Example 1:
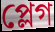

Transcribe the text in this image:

প্লেগ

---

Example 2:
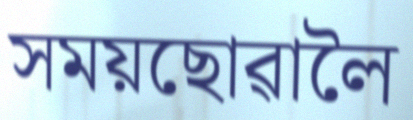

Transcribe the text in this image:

সময়ছোৱালৈ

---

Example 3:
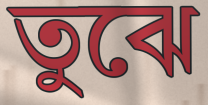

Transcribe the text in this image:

তুঝে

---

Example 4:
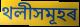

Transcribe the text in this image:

থলীসমূহৰ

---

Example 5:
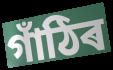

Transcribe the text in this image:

গাঁঠিৰ